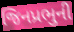
જિનપ્રભુની